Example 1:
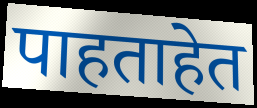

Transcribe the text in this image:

पाहताहेत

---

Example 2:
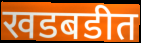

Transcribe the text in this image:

खडबडीत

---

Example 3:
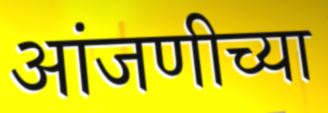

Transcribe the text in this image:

आंजणीच्या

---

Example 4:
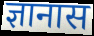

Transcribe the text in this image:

ज्ञानास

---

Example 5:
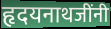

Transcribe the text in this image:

हृदयनाथजींनी